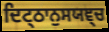
ਦਿਟ੍ਠਾਨੁਸਯਞ੍ਚ